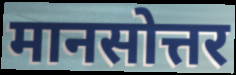
मानसोत्तर